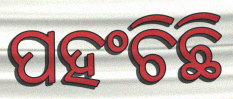
ପହଂଚିଛି